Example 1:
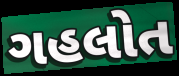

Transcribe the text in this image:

ગહલોત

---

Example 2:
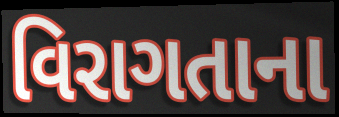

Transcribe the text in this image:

વિરાગતાના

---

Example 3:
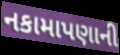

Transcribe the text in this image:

નકામાપણાની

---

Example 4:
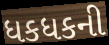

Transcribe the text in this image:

ધકધકની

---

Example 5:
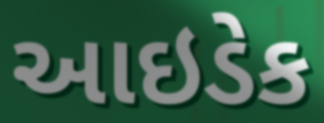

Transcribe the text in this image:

આઇડેક